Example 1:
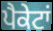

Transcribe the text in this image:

ਪੈਕੇਟਾਂ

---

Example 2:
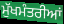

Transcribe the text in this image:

ਮੁੱਖਮੰਤਰੀਆਂ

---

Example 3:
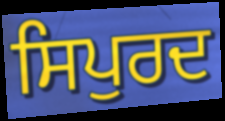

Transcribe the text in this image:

ਸਿਪੁਰਦ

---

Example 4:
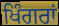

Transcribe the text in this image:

ਖਿੰਗਰਾਂ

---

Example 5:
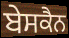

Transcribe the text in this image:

ਬੇਸਕੈਨ